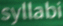
syllabi